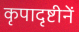
कृपादृष्टीनें